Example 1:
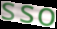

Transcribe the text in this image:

sso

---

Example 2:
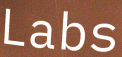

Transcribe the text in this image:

Labs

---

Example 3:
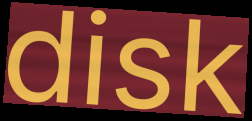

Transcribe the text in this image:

disk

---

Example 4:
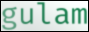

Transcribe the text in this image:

gulam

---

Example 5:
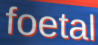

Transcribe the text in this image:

foetal